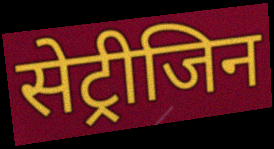
सेट्रीजिन